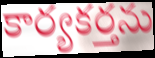
కార్యకర్తను